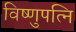
विष्णुपत्नि